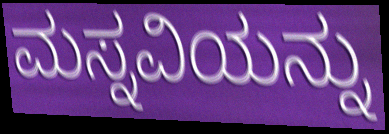
ಮಸ್ನವಿಯನ್ನು